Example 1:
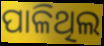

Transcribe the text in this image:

ପାଳିଥିଲ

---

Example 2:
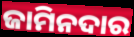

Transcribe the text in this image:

ଜାମିନଦାର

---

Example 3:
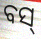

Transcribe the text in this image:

ବସ୍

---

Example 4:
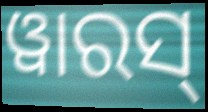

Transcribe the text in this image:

ୱାରସ୍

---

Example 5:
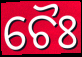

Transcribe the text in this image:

ଚୈଃ